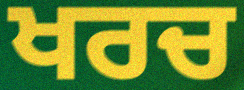
ਖਰਚ